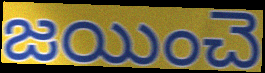
జయించె